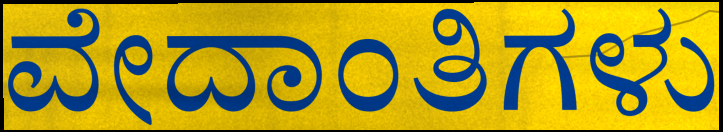
ವೇದಾಂತಿಗಳು